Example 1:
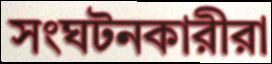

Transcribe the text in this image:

সংঘটনকারীরা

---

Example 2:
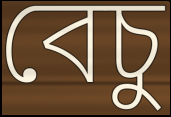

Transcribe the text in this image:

বেচু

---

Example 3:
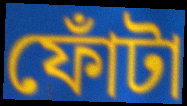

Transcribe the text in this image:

ফোঁটা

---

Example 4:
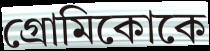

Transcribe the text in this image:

গ্রোমিকোকে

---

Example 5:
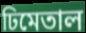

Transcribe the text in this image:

ঢিমেতাল